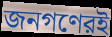
জনগণেরই